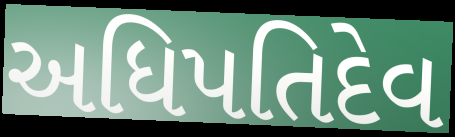
અધિપતિદેવ